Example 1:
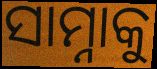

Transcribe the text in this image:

ସାମ୍ନାକୁ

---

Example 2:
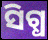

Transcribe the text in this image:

ସିଗ୍ଧ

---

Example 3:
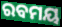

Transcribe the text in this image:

ରବମୟ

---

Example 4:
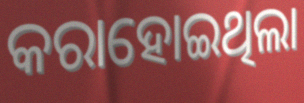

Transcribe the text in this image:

କରାହୋଇଥିଲା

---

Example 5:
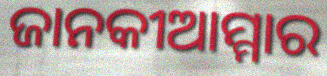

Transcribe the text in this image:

ଜାନକୀଆମ୍ମାର